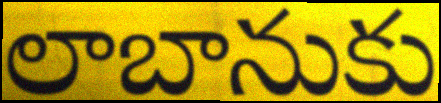
లాబానుకు